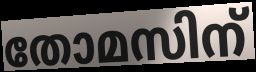
തോമസിന്